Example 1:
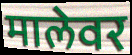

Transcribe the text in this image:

मालेवर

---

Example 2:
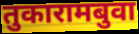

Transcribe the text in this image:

तुकारामबुवा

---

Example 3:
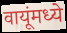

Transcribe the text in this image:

वायूंमध्ये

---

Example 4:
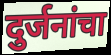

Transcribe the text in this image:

दुर्जनांचा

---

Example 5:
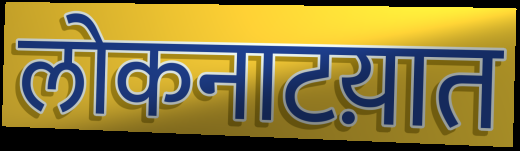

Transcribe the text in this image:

लोकनाटय़ात